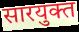
सारयुक्त